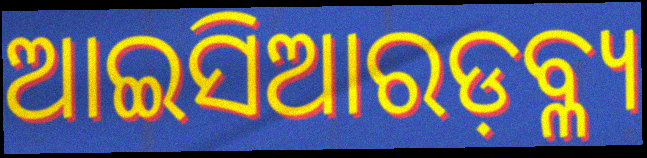
ଆଇସିଆରଡ଼ବ୍ଳ୍ୟ